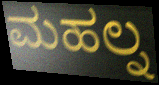
ಮಹಲ್ನ